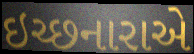
ઇચ્છનારાએ